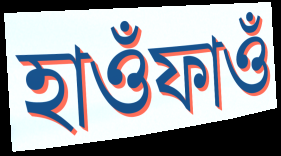
হাওঁফাওঁ